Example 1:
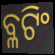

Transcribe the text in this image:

ବ୍ଳଟିଂ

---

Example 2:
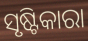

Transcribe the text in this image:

ସୃଷ୍ଟିକାରା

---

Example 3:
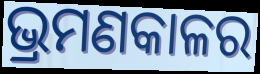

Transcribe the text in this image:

ଭ୍ରମଣକାଳର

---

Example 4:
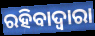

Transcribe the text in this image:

ରହିବାଦ୍ଵାରା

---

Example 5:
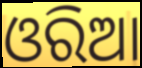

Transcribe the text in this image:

ଓରିଆ